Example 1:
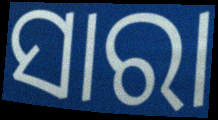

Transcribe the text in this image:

ସାରା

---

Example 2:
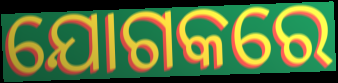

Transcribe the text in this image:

ଯୋଗକରେ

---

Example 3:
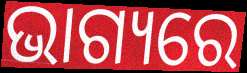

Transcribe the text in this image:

ଭାଗ୍ୟରେ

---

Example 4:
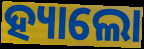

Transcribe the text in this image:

ହ୍ୟାଲୋ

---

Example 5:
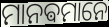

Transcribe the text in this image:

ମାନଵମାନେ